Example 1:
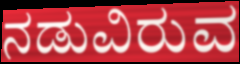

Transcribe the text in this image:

ನಡುವಿರುವ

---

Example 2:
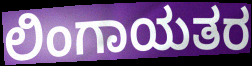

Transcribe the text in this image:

ಲಿಂಗಾಯತರ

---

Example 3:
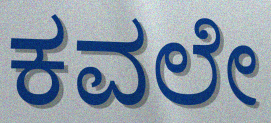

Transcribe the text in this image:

ಕವಲೇ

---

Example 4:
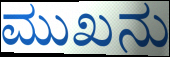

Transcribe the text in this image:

ಮುಖನು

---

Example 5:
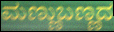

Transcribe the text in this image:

ಮಣ್ಣುಬಣ್ಣದ